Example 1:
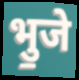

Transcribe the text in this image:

भु॒जे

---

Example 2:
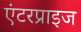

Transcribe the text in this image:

एंटरप्राइज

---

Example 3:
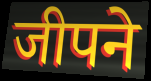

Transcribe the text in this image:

जीपने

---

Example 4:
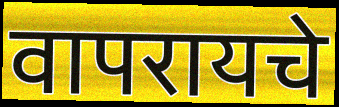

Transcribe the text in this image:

वापरायचे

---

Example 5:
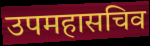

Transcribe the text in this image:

उपमहासचिव